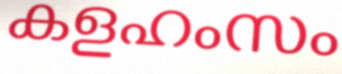
കളഹംസം